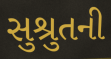
સુશ્રુતની